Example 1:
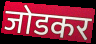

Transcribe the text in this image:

जोडकर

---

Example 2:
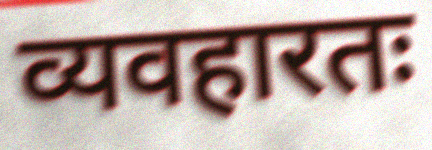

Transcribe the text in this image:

व्यवहारतः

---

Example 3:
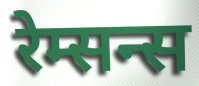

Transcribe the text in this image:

रेम्सन्स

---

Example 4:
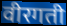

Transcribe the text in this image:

वीरगती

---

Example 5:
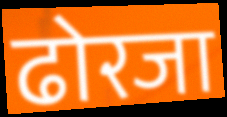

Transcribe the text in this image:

ढोरजा